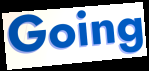
Going